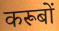
करूबों